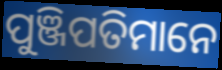
ପୁଞ୍ଜିପତିମାନେ